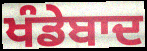
ਖੰਡੇਬਾਦ